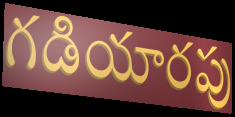
గడియారపు